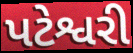
પટેશ્વરી